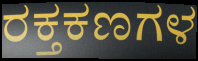
ರಕ್ತಕಣಗಳ